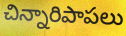
చిన్నారిపాపలు